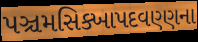
પઞ્ચમસિક્ખાપદવણ્ણના